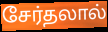
சேர்தலால்